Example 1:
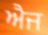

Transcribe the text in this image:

ਐਜ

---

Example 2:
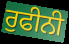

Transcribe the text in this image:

ਰੁਫੀਨੀ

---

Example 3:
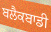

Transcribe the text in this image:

ਬਲੈਕਬਾਡੀ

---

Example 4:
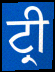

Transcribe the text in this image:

ਟ੍ਰੀ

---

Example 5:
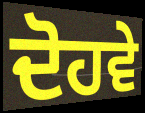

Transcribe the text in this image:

ਦੋਹਵੇ